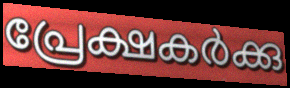
പ്രേക്ഷകർക്കു